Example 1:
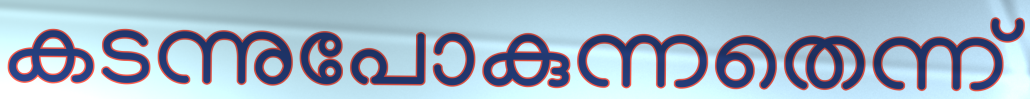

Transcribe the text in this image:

കടന്നുപോകുന്നതെന്ന്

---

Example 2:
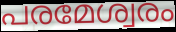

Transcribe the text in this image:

പരമേശ്വരം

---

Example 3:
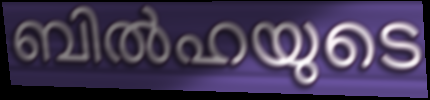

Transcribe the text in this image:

ബിൽഹയുടെ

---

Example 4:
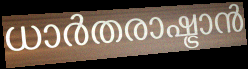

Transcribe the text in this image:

ധാർതരാഷ്ട്രാൻ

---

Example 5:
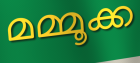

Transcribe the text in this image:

മമ്മൂക്ക